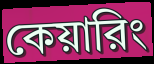
কেয়ারিং